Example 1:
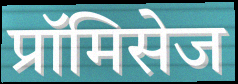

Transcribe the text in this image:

प्रॉमिसेज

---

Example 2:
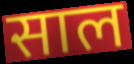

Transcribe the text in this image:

साल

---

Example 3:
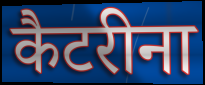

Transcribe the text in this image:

कैटरीना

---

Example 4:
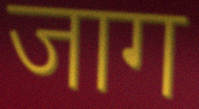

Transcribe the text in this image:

जाग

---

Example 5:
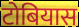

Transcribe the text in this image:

टोबियास